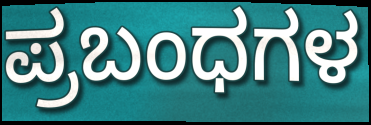
ಪ್ರಬಂಧಗಳ